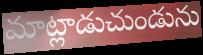
మాట్లాడుచుండును